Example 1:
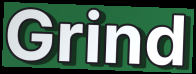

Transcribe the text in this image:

Grind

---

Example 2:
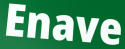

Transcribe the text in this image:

Enave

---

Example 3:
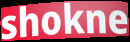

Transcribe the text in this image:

shokne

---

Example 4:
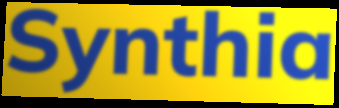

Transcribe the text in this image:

Synthia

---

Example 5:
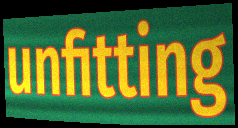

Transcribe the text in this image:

unfitting